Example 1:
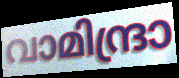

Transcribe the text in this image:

വാമിന്ദ്രാ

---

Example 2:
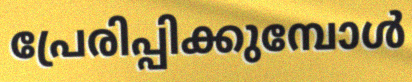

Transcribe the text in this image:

പ്രേരിപ്പിക്കുമ്പോൾ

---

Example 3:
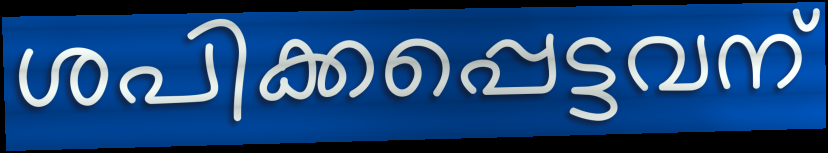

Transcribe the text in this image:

ശപിക്കപ്പെട്ടവന്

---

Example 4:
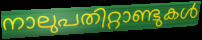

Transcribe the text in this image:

നാലുപതിറ്റാണ്ടുകൾ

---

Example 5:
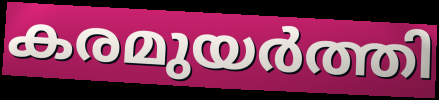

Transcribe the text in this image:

കരമുയർത്തി